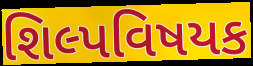
શિલ્પવિષયક